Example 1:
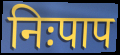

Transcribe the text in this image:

निःपाप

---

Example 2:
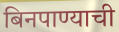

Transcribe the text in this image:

बिनपाण्याची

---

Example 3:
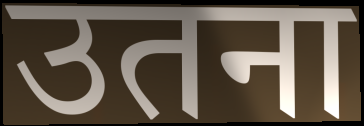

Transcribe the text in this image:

उतना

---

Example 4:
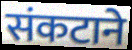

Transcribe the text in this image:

संकटाने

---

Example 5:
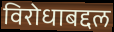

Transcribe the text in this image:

विरोधाबद्दल